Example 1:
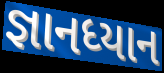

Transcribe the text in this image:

જ્ઞાનધ્યાન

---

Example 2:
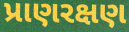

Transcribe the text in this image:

પ્રાણરક્ષણ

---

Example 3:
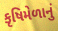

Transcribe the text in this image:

કૃષિમેળાનું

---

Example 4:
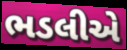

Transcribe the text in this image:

ભડલીએ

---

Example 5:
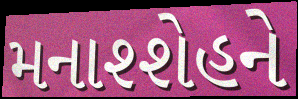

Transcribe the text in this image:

મનાશ્શેહને